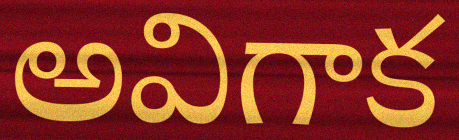
అవిగాక